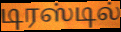
டிரஸ்டில்